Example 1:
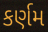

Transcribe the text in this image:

કર્ણમ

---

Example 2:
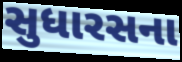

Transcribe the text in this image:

સુધારસના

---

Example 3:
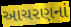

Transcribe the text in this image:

આચરણનાં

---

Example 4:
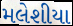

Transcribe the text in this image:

મલેશીયા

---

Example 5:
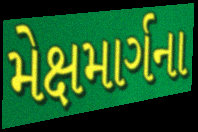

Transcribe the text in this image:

મેક્ષમાર્ગના